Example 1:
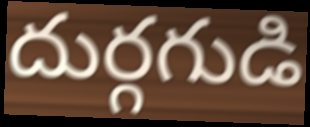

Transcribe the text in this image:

దుర్గగుడి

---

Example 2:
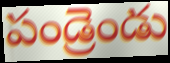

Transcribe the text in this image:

పండ్రెండు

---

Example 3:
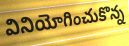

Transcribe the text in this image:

వినియోగించుకొన్న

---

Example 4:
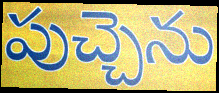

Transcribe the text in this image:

పుచ్చెను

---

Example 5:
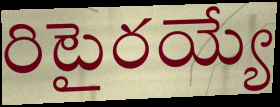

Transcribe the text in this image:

రిటైరయ్యే